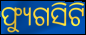
ଫ୍ୟୁଗସିଟି